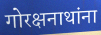
गोरक्षनाथांना